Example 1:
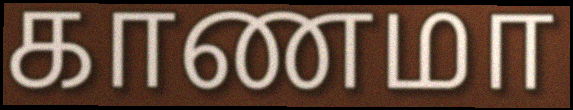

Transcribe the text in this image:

காணமா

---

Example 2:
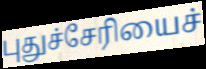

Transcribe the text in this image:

புதுச்சேரியைச்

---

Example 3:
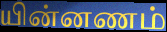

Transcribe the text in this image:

யின்னணம்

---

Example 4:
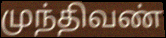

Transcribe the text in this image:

முந்திவண்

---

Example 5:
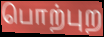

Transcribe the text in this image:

பொற்புற